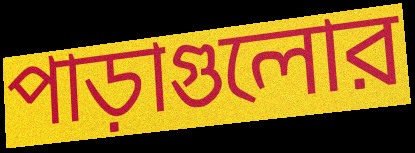
পাড়াগুলোর